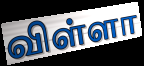
விள்ளா